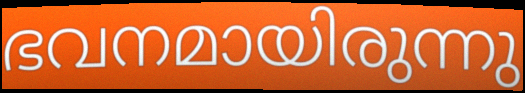
ഭവനമായിരുന്നു